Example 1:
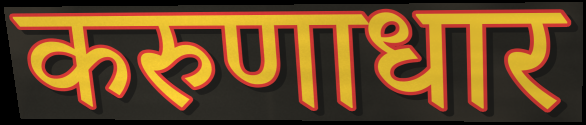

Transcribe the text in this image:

करुणाधार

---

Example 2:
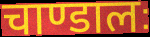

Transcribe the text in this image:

चाण्डालः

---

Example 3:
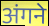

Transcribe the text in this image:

अंगने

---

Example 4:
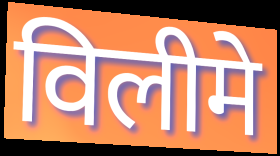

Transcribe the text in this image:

विलीमे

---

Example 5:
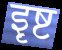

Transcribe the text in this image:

इृष्ट